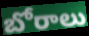
బోరాలు